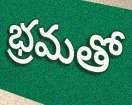
భ్రమతో